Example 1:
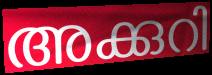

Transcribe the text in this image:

അക്കുറി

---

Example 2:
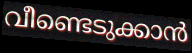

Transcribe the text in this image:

വീണ്ടെടുക്കാൻ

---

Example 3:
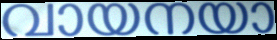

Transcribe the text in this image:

വായനയാ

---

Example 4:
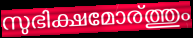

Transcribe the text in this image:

സുഭിക്ഷമോര്ത്തും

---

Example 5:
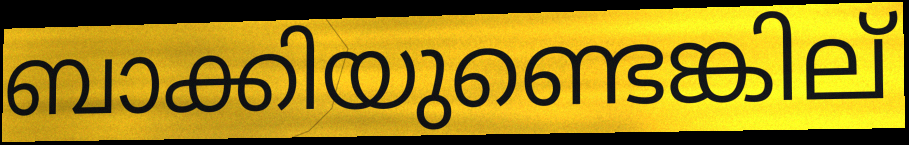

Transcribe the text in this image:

ബാക്കിയുണ്ടെങ്കില്